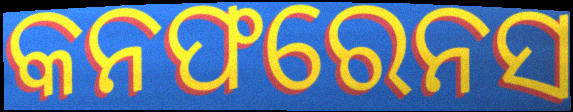
କନଫରେନସ